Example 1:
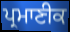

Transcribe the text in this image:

ਪ੍ਰਮਾਣੀਕ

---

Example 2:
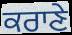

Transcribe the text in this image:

ਕਰਾਣੇ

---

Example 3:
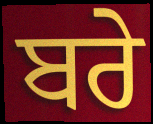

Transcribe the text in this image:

ਬਰੇ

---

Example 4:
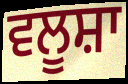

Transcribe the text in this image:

ਵਲੂਸ਼ਾ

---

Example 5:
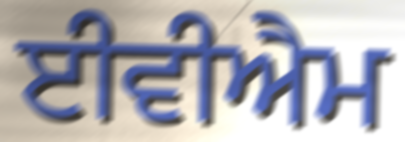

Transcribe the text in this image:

ਈਵੀਐਮ